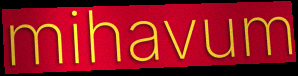
mihavum